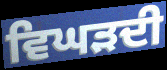
ਵਿਘੜਦੀ